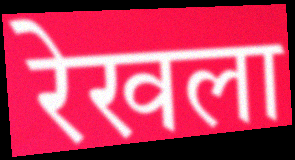
रेखला